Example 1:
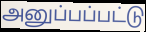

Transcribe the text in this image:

அனுப்பப்பட்டு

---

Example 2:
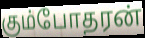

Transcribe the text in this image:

கும்போதரன்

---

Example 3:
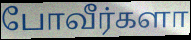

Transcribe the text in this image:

போவீர்களா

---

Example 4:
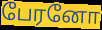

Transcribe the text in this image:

பேரனோ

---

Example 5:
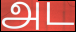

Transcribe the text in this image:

அட